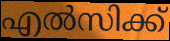
എൽസിക്ക്